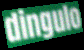
dingulo